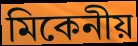
মিকেনীয়